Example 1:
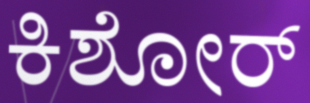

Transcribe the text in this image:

ಕಿಶೋರ್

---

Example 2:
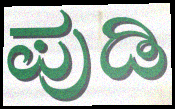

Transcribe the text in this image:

ಪುಡಿ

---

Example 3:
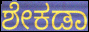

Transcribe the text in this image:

ಶೇಕಡಾ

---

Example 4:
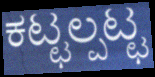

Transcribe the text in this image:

ಕಟ್ಟಲ್ಪಟ್ಟ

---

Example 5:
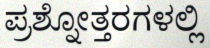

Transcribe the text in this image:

ಪ್ರಶ್ನೋತ್ತರಗಳಲ್ಲಿ